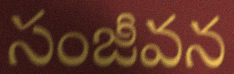
సంజీవన